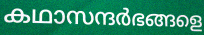
കഥാസന്ദർഭങ്ങളെ